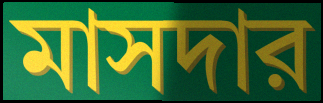
মাসদার